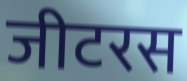
जीटरस